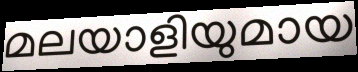
മലയാളിയുമായ